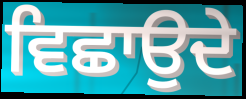
ਵਿਛਾਉਦੇ